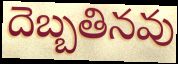
దెబ్బతినవు